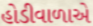
હોડીવાળાએ